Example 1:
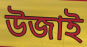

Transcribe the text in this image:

উজাই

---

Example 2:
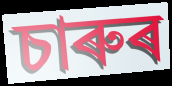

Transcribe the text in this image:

চাৰুৰ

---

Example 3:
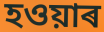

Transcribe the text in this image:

হওয়াৰ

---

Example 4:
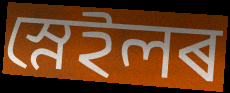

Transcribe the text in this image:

স্নেইলৰ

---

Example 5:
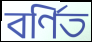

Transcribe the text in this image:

বৰ্ণিত